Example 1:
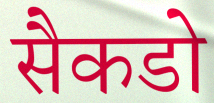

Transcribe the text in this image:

सैकडो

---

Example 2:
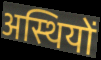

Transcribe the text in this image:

अस्थियों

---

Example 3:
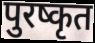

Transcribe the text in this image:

पुरष्कृत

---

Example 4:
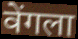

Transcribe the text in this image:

वेंगला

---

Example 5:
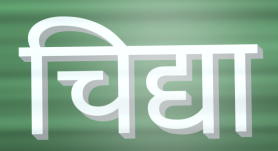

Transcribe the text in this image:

चिद्या